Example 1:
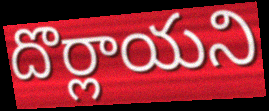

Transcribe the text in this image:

దొర్లాయని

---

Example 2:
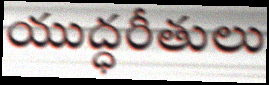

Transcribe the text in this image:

యుద్ధరీతులు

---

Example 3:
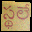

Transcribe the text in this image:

స్థలే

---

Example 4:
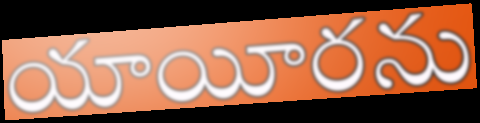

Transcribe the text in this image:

యాయీరను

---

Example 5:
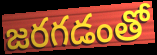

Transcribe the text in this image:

జరగడంతో